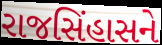
રાજસિંહાસને